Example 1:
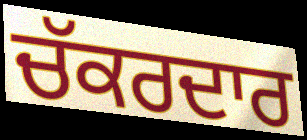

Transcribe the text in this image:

ਚੱਕਰਦਾਰ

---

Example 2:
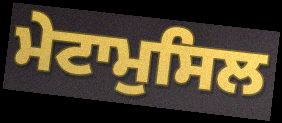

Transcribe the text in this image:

ਮੇਟਾਮੁਸਿਲ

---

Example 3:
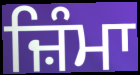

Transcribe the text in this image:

ਜ਼ਿੰਮਾ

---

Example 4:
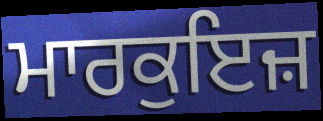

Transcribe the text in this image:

ਮਾਰਕੁਇਜ਼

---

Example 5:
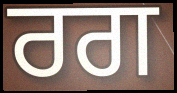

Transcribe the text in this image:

ਰਗ